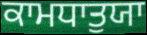
ਕਾਮਧਾਤੁਯਾ